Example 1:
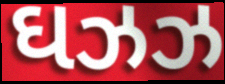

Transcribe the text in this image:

ઘઝઝ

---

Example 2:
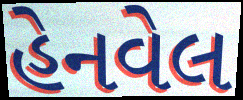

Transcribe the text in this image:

હેનવેલ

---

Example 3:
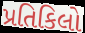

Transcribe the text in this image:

પ્રતિકિલો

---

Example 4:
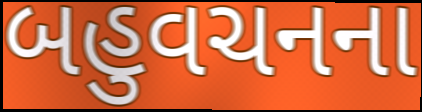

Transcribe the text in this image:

બહુવચનના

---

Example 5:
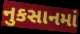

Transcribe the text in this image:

નુકસાનમાં